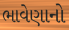
ભાવેણાનો